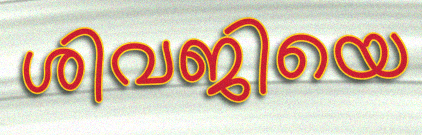
ശിവജിയെ